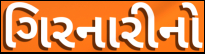
ગિરનારીનો